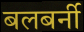
बलबर्नी